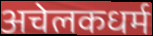
अचेलकधर्म